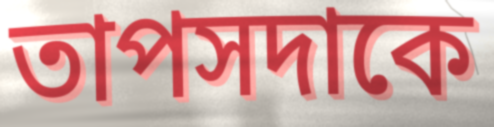
তাপসদাকে